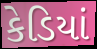
કેડિયાં